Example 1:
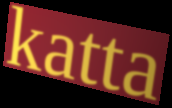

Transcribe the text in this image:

katta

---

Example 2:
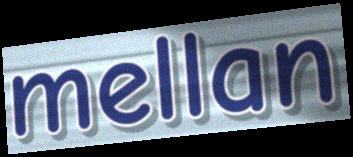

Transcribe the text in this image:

mellan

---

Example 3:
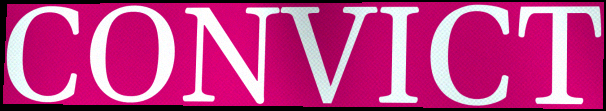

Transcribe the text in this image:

CONVICT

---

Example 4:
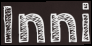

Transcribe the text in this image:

Inni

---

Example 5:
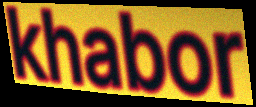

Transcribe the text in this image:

khabor